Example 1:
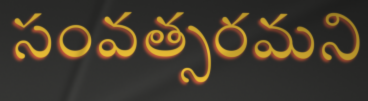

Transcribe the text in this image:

సంవత్సరమని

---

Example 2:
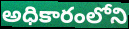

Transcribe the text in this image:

అధికారంలోని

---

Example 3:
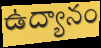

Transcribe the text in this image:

ఉద్యానం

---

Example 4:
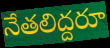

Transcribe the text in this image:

నేతలిద్దరూ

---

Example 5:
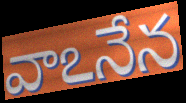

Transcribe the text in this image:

వాఽనేన